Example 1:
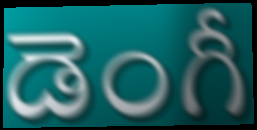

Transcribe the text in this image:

డెంగీ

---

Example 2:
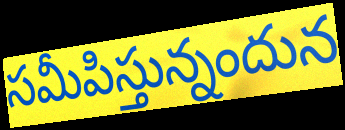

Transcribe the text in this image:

సమీపిస్తున్నందున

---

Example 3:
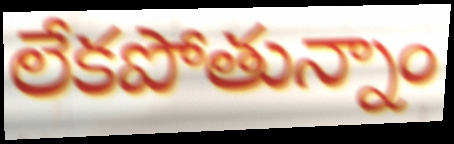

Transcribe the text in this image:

లేకపోతున్నాం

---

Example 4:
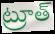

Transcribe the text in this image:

ట్రూత్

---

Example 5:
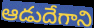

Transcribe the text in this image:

ఆడుదేగాని